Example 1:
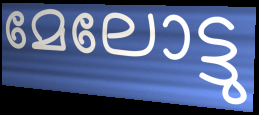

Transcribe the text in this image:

മേലോട്ടു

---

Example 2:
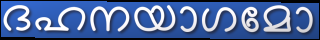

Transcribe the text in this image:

ദഹനയാഗമോ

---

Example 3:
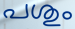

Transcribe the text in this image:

പശും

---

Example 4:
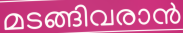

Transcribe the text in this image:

മടങ്ങിവരാൻ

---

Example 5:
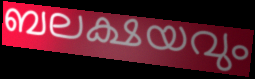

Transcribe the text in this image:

ബലക്ഷയവും